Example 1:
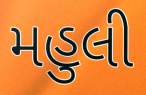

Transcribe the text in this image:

મહુલી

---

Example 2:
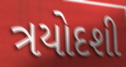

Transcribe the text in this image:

ત્રયોદશી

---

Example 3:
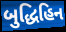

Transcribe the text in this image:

બુદ્ધિહિન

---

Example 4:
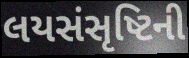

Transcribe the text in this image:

લયસંસૃષ્ટિની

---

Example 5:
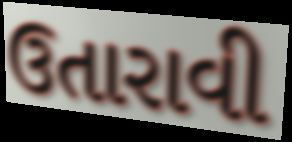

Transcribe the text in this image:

ઉતારાવી